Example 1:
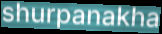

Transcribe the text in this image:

shurpanakha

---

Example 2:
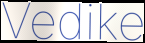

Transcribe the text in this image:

Vedike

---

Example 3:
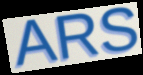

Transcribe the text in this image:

ARS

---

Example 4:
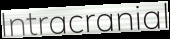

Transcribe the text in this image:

Intracranial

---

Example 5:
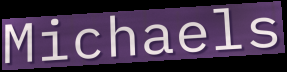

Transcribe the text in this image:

Michaels